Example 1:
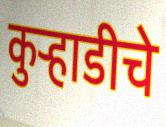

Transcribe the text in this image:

कुऱ्हाडीचे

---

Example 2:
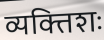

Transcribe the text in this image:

व्यक्तिशः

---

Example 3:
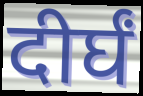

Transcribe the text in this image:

दीर्घं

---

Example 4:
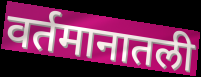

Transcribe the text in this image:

वर्तमानातली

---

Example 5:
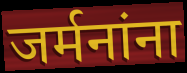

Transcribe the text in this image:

जर्मनांना